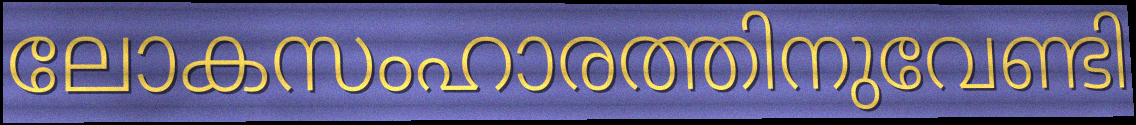
ലോകസംഹാരത്തിനുവേണ്ടി